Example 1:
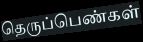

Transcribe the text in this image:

தெருப்பெண்கள்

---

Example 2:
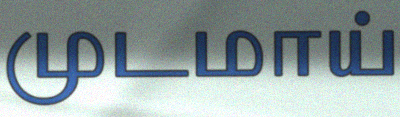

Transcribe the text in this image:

முடமாய்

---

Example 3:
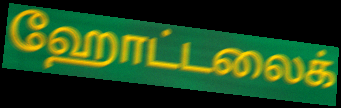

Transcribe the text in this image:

ஹோட்டலைக்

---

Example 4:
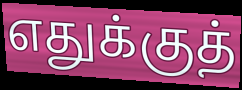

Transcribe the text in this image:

எதுக்குத்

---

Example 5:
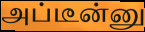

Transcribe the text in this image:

அப்டீன்னு